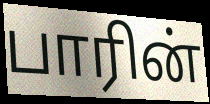
பாரின்